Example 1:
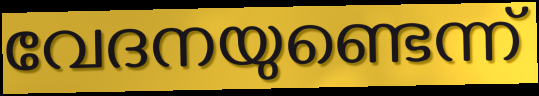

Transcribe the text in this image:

വേദനയുണ്ടെന്ന്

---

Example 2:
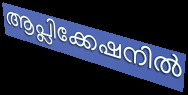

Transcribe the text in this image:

ആപ്ലിക്കേഷനിൽ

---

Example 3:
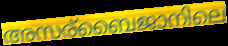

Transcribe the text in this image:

അസര്ബൈജാനിലെ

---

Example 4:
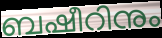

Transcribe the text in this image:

ബഷീറിനും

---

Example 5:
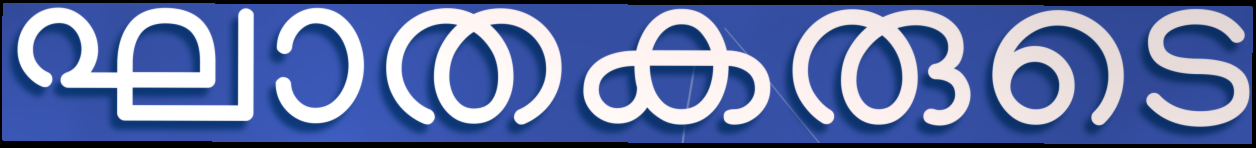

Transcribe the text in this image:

ഘാതകരുടെ